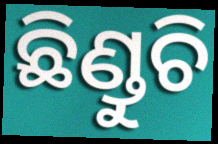
ଛିଣ୍ଡୁଚି